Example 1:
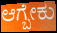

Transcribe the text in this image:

ಆಗ್ಬೇಕು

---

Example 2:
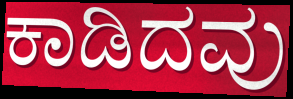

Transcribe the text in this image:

ಕಾಡಿದವು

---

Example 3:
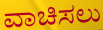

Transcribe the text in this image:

ವಾಚಿಸಲು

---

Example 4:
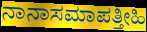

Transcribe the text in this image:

ನಾನಾಸಮಾಪತ್ತೀಹಿ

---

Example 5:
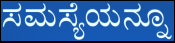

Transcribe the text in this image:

ಸಮಸ್ಯೆಯನ್ನೂ